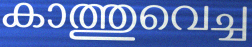
കാത്തുവെച്ച